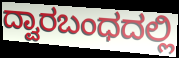
ದ್ವಾರಬಂಧದಲ್ಲಿ